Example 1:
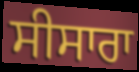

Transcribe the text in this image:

ਸੀਸਾਰਾ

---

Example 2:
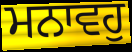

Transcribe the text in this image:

ਮਨਾਵਹੁ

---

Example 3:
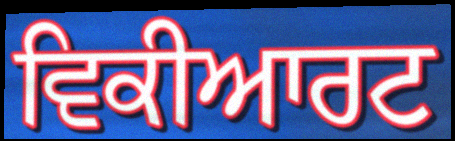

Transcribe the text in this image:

ਵਿਕੀਆਰਟ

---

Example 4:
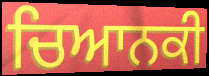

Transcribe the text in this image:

ਚਿਆਨਕੀ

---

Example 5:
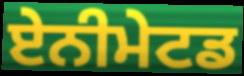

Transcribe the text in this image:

ਏਨੀਮੇਟਡ